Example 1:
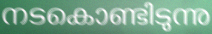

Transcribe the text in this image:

നടകൊണ്ടിടുന്നു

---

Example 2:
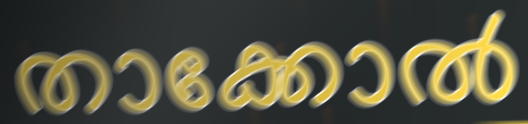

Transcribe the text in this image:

താക്കോൽ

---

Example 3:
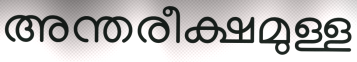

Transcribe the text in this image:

അന്തരീക്ഷമുള്ള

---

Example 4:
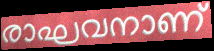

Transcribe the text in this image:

രാഘവനാണ്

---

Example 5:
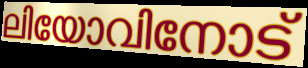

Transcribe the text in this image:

ലിയോവിനോട്